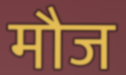
मौज